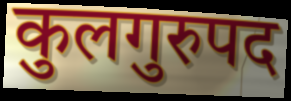
कुलगुरुपद